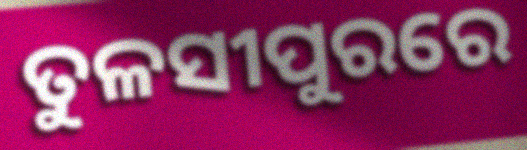
ତୁଳସୀପୁରରେ